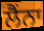
ਲੈਂਨਾ